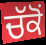
ਚੱਕੋਂ